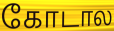
கோடால